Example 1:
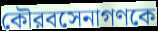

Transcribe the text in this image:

কৌরবসেনাগণকে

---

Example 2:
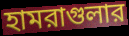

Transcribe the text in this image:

হামরাগুলার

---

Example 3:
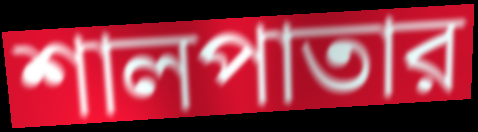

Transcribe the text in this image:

শালপাতার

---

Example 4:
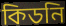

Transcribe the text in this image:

কিডনি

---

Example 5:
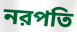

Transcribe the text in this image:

নরপতি